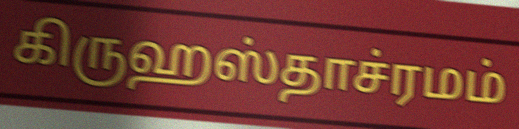
கிருஹஸ்தாச்ரமம்